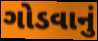
ગોડવાનું